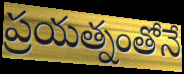
ప్రయత్నంతోనే